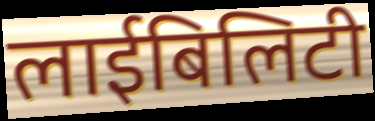
लाईबिलिटी